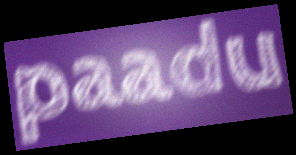
paadu